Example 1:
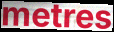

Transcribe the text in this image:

metres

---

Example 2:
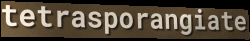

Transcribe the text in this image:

tetrasporangiate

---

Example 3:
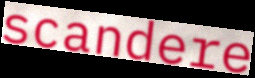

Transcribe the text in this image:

scandere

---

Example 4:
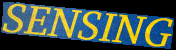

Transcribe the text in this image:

SENSING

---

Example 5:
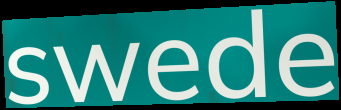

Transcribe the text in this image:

swede